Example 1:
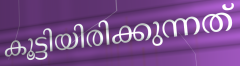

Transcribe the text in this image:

കൂട്ടിയിരിക്കുന്നത്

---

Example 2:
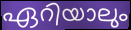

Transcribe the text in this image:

ഏറിയാലും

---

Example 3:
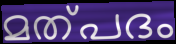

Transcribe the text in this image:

മത്പദം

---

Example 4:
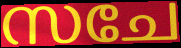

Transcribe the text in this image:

സചേ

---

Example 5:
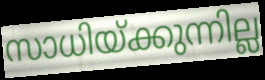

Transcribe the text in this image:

സാധിയ്ക്കുന്നില്ല